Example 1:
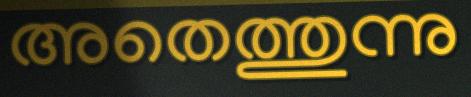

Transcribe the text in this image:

അതെത്തുന്നു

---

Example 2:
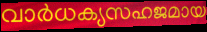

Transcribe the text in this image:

വാർധക്യസഹജമായ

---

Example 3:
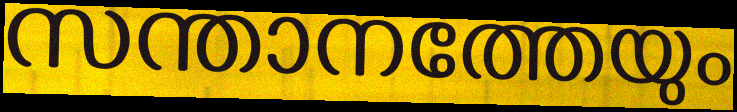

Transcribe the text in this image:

സന്താനത്തേയും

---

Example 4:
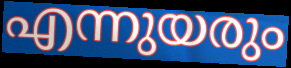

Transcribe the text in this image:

എന്നുയരും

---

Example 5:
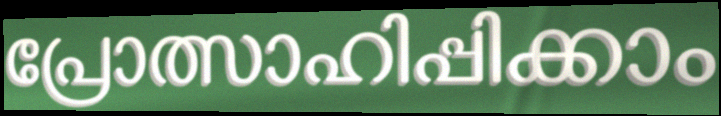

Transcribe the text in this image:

പ്രോത്സാഹിപ്പിക്കാം